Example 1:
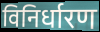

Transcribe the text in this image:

विनिर्धारण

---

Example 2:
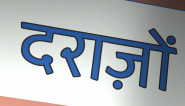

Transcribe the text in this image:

दराज़ों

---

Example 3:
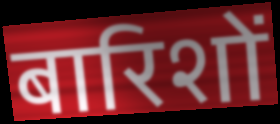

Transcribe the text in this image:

बारिशों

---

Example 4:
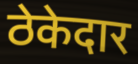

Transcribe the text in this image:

ठेकेदार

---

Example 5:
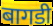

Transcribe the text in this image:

बागडी